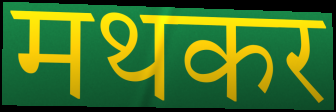
मथकर